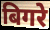
बिगरे